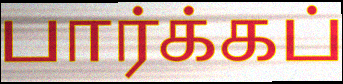
பார்க்கப்